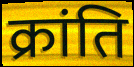
क्रांति